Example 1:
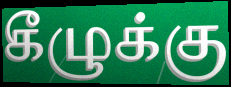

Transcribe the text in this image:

கீழுக்கு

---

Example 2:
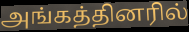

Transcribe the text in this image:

அங்கத்தினரில்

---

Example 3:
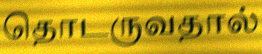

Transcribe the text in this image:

தொடருவதால்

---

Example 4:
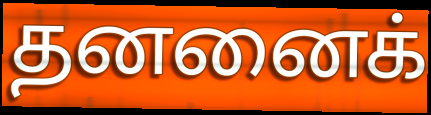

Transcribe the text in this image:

தனனைக்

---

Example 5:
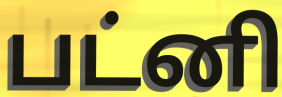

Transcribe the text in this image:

பட்னி